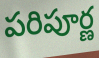
పరిపూర్ణ